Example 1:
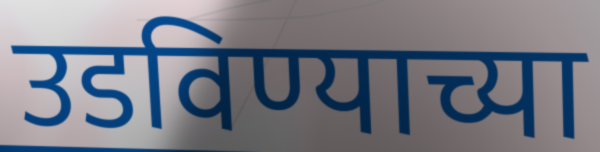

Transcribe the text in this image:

उडविण्याच्या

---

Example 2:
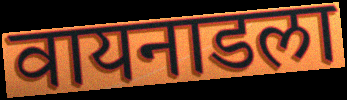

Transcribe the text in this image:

वायनाडला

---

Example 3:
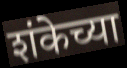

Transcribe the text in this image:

शंकेच्या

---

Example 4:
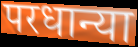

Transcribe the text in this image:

परधान्या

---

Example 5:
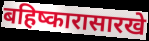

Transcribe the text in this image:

बहिष्कारासारखे